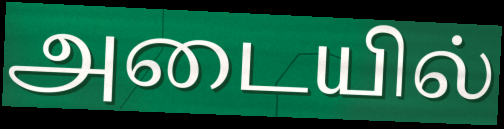
அடையில்